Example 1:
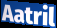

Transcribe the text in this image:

Aatril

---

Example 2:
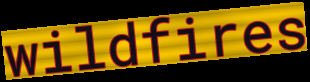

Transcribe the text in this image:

wildfires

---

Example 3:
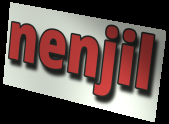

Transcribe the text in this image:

nenjil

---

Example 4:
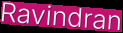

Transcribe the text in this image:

Ravindran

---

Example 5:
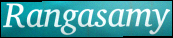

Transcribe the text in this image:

Rangasamy